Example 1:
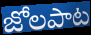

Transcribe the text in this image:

జోలపాట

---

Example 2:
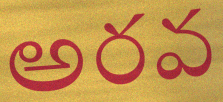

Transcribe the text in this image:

అరవ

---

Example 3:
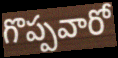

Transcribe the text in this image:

గొప్పవారో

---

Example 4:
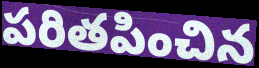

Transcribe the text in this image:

పరితపించిన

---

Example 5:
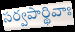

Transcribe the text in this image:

సర్వపార్థివాః